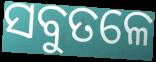
ସବୁତଳେ